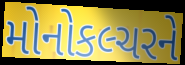
મોનોકલ્ચરને